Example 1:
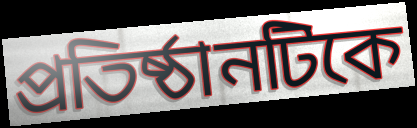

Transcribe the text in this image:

প্রতিষ্ঠানটিকে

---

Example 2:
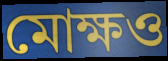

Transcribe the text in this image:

মোক্ষও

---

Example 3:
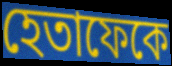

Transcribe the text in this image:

হেতাফেকে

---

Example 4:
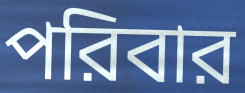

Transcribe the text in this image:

পরিবার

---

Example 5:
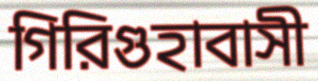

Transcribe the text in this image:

গিরিগুহাবাসী